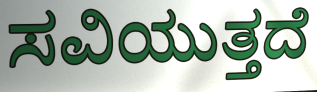
ಸವಿಯುತ್ತದೆ